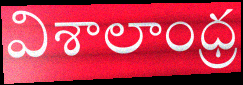
విశాలాంధ్ర